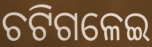
ଚଟିଗଳେଇ